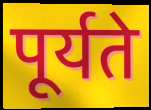
पूर्यते